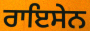
ਰਾਇਸੇਨ